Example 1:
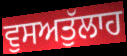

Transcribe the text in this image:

ਵੁਸਅਤੁੱਲਾਹ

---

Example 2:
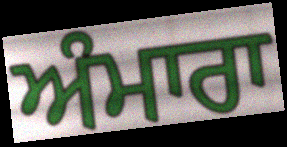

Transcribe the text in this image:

ਅੰਮਾਰਾ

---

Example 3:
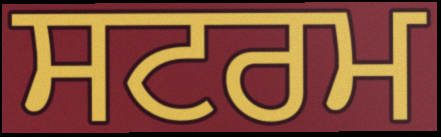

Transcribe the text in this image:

ਸਟਰਮ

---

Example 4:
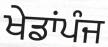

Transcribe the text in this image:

ਖੇਡਾਂਪੰਜ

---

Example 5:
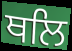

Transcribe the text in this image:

ਥਲਿ